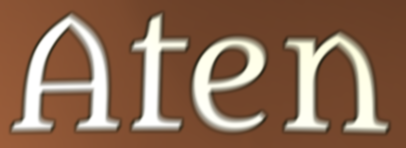
Aten